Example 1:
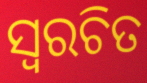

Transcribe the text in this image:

ସ୍ଵରଚିତ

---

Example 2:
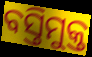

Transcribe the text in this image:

ବସ୍ତିମୁକ୍ତ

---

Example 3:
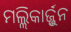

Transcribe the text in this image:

ମଲ୍ଲିକାର୍ଜ୍ଜୁନ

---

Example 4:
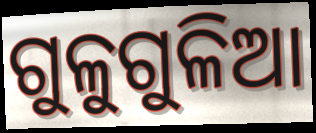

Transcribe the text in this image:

ଗୁଳୁଗୁଳିଆ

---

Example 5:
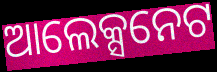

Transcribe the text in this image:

ଆଲେକ୍ସନେଟ